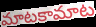
మాటకామాట